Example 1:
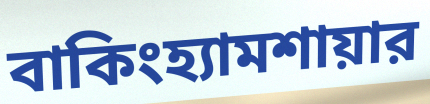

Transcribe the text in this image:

বাকিংহ্যামশায়ার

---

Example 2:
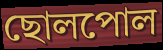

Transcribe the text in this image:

ছোলপোল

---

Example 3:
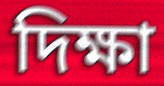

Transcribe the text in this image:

দিক্ষা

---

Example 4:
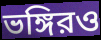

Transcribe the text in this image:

ভঙ্গিরও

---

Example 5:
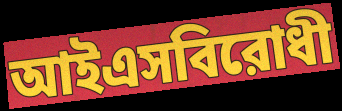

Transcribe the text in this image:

আইএসবিরোধী